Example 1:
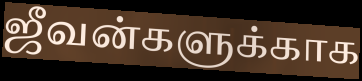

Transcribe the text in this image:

ஜீவன்களுக்காக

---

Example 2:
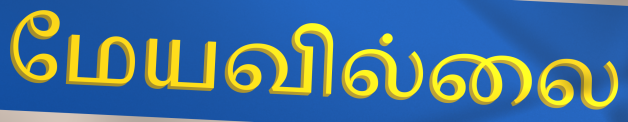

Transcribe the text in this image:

மேயவில்லை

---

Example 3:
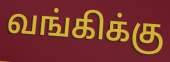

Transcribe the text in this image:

வங்கிக்கு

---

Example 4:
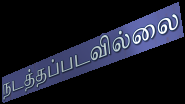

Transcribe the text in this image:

நடத்தப்படவில்லை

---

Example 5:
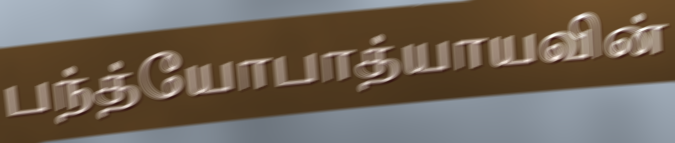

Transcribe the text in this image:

பந்த்யோபாத்யாயவின்